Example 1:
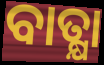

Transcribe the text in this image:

ବାତ୍କ୍ଷା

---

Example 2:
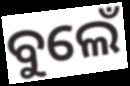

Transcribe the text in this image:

ବୁଲେଁ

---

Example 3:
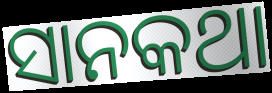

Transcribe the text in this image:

ସାନକଥା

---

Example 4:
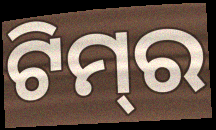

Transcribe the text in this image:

ଟିମ୍‌ର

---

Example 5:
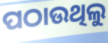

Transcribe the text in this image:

ପଠାଉଥିଲୁ